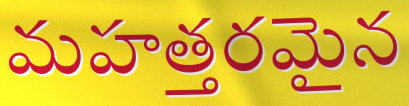
మహత్తరమైన